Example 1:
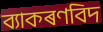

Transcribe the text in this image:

ব্যাকৰণবিদ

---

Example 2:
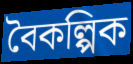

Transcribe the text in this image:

বৈকল্পিক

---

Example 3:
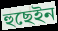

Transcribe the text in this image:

হুছেইন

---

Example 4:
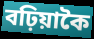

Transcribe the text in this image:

বঢ়িয়াকৈ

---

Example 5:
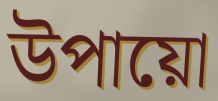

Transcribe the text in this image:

উপায়ো